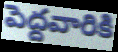
పెద్దవారికి